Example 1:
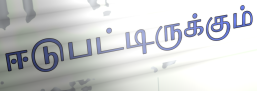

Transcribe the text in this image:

ஈடுபட்டிருக்கும்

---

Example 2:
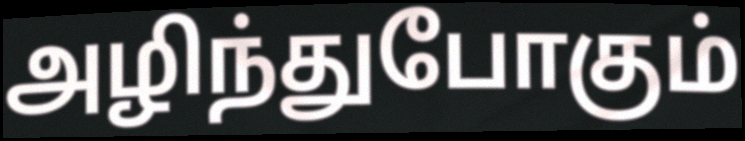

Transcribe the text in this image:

அழிந்துபோகும்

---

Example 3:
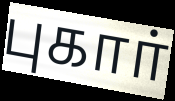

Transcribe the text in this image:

புகார்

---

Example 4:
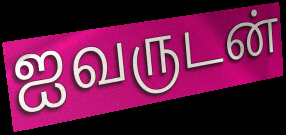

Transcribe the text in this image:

ஐவருடன்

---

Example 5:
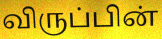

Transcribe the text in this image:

விருப்பின்